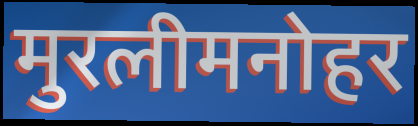
मुरलीमनोहर